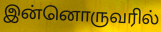
இன்னொருவரில்